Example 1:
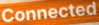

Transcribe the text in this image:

Connected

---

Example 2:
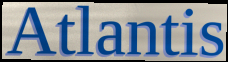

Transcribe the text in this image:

Atlantis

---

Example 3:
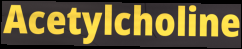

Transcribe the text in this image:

Acetylcholine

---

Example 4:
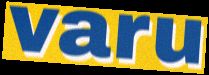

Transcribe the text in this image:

varu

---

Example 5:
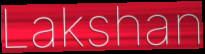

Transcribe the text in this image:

Lakshan